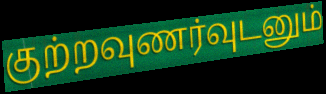
குற்றவுணர்வுடனும்